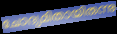
ചോദ്യമിതായിരുന്നു